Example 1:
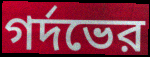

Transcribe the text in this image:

গর্দভের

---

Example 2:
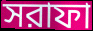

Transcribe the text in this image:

সরাফা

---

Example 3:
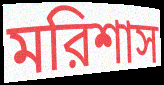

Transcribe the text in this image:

মরিশাস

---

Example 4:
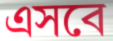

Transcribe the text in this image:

এসবে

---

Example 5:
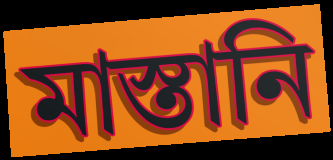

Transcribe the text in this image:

মাস্তানি